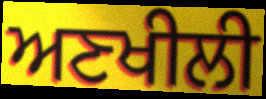
ਅਣਖੀਲੀ